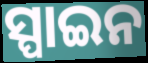
ସ୍ପାଇନ